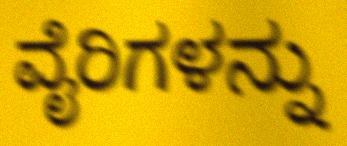
ವೈರಿಗಳನ್ನು